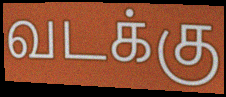
வடக்கு